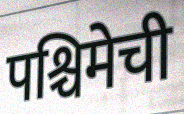
पश्चिमेची